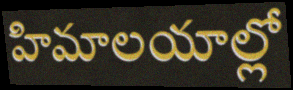
హిమాలయాల్లో